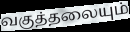
வகுத்தலையும்